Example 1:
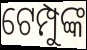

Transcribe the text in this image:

ଟେମ୍ପୁଙ୍କ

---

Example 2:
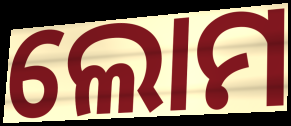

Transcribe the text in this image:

ଲୋମ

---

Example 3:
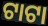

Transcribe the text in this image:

ଟାଟା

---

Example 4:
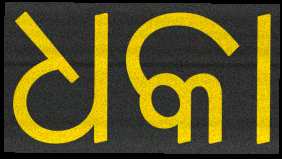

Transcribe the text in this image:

ଧକା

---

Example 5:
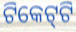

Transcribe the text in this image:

ଟିକେଟ୍‌ଟି